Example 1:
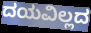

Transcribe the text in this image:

ದಯವಿಲ್ಲದ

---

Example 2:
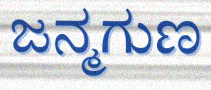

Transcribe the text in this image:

ಜನ್ಮಗುಣ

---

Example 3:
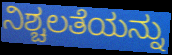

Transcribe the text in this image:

ನಿಶ್ಚಲತೆಯನ್ನು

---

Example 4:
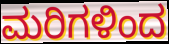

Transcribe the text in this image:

ಮರಿಗಳಿಂದ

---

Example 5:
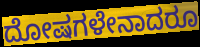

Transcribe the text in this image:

ದೋಷಗಳೇನಾದರೂ